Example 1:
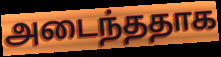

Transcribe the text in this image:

அடைந்ததாக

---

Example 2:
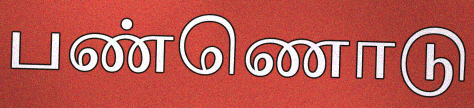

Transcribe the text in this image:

பண்ணொடு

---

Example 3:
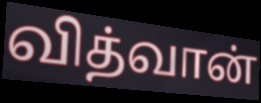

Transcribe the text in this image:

வித்வான்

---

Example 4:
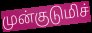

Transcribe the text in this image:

முன்குடுமிச்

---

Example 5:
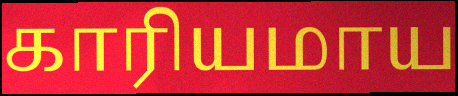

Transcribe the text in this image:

காரியமாய